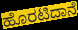
ಹೊರಟಿದಾನೆ